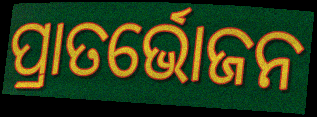
ପ୍ରାତର୍ଭୋଜନ